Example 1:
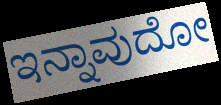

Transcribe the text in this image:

ಇನ್ನಾವುದೋ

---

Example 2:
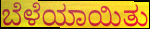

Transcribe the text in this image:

ಬೆಳೆಯಾಯಿತು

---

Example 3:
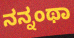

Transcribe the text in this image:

ನನ್ನಂಥಾ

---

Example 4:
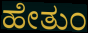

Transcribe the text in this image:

ಹೇತುಂ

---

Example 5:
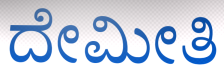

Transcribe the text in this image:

ದೇಮೀತಿ